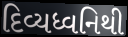
દિવ્યધ્વનિથી